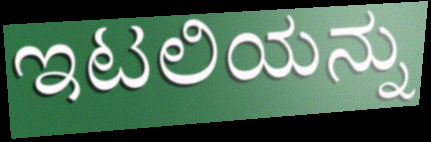
ಇಟಲಿಯನ್ನು